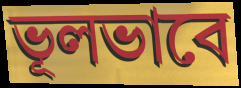
ভূলভাবে